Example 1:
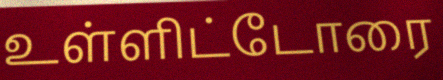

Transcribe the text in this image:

உள்ளிட்டோரை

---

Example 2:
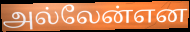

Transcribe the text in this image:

அல்லேன்என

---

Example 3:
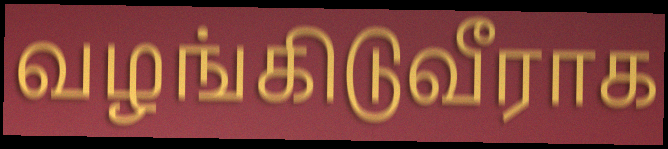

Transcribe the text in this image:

வழங்கிடுவீராக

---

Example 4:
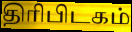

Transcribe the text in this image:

திரிபிடகம்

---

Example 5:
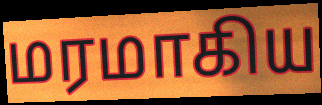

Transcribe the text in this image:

மரமாகிய